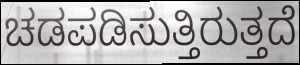
ಚಡಪಡಿಸುತ್ತಿರುತ್ತದೆ